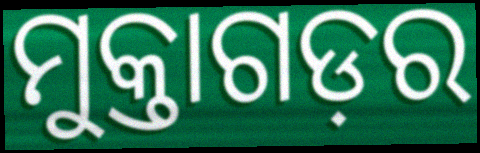
ମୁକ୍ତାଗଡ଼ର